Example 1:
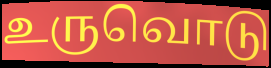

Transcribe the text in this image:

உருவொடு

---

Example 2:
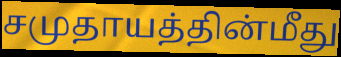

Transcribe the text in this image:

சமுதாயத்தின்மீது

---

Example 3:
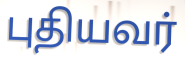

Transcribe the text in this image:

புதியவர்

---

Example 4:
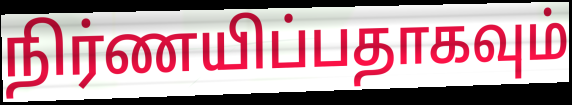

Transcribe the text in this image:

நிர்ணயிப்பதாகவும்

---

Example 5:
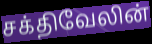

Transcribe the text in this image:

சக்திவேலின்